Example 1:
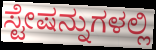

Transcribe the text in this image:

ಸ್ಟೇಷನ್ನುಗಳಲ್ಲಿ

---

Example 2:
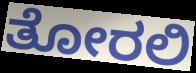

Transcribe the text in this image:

ತೋರಲಿ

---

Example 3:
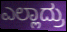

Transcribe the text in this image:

ಎಲ್ಲಾದ್ರು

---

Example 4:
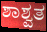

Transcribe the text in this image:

ಶಾಶ್ವತ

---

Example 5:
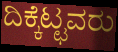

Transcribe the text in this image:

ದಿಕ್ಕೆಟ್ಟವರು